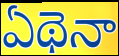
ఏథెనా